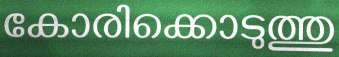
കോരിക്കൊടുത്തു